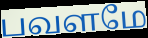
பவளமே